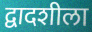
द्वादशीला